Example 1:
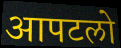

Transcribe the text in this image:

आपटलो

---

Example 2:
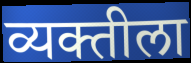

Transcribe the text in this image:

व्यक्तीला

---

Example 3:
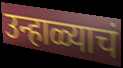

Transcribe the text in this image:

उन्हाळ्याचं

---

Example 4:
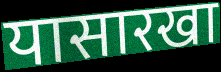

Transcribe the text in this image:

यासारखा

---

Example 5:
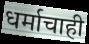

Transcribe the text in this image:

धर्माचाही